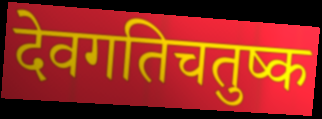
देवगतिचतुष्क